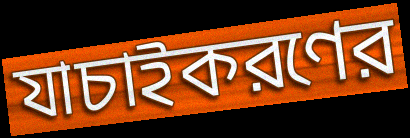
যাচাইকরণের